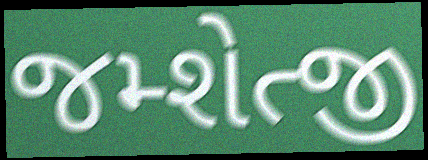
જમ્શેત્જી